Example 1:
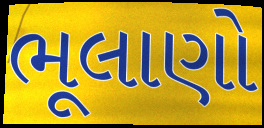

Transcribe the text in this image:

ભૂલાણો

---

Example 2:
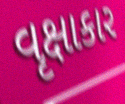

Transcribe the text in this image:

વૃક્ષાકાર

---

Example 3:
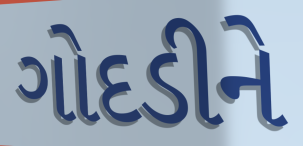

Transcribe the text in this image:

ગોદડીને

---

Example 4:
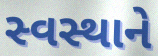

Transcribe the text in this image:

સ્વસ્થાને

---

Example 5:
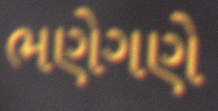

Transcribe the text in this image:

ભણેગણે